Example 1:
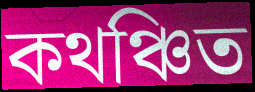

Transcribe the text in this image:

কথঞ্চিত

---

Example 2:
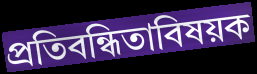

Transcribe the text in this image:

প্রতিবন্ধিতাবিষয়ক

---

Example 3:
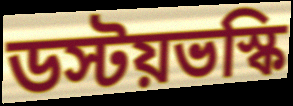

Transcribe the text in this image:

ডস্টয়ভস্কি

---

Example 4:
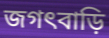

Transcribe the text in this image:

জগৎবাড়ি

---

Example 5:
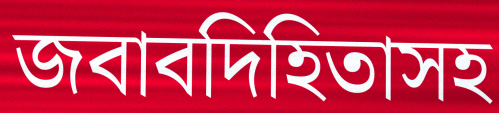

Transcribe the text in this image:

জবাবদিহিতাসহ